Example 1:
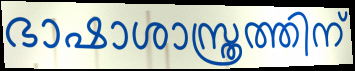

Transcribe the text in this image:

ഭാഷാശാസ്ത്രത്തിന്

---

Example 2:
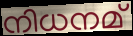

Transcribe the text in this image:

നിധനമ്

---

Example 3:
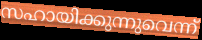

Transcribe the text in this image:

സഹായിക്കുന്നുവെന്ന്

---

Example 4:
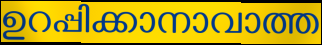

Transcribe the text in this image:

ഉറപ്പിക്കാനാവാത്ത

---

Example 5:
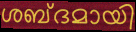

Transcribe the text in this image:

ശബ്ദമായി